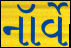
નૉર્વે